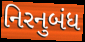
નિરનુબંધ